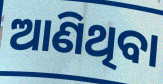
ଆଣିଥିବା